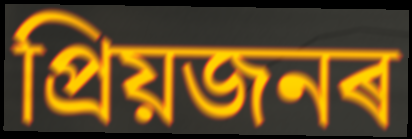
প্ৰিয়জনৰ